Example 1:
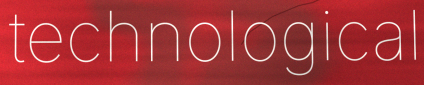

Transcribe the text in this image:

technological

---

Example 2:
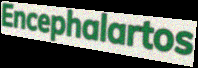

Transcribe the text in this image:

Encephalartos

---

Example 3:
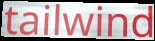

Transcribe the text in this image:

tailwind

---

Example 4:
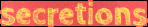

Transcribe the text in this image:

secretions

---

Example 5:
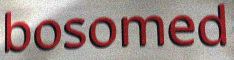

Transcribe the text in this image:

bosomed